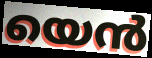
യെൻ